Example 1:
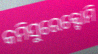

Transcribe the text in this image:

କମିସୁରେକ୍ଟୋମି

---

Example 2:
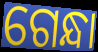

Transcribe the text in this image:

ଗେନ୍ଧା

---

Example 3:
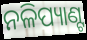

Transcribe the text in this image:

ନଳିପ୍ୟାଣ୍ଟ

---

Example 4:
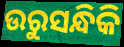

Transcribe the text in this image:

ଉରୁସନ୍ଧିକି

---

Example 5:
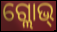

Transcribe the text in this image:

ଗ୍ଲୋଭ୍